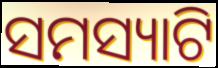
ସମସ୍ୟାଟି